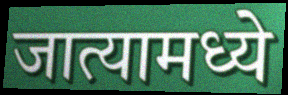
जात्यामध्ये